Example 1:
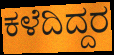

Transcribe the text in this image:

ಕಳೆದಿದ್ದರ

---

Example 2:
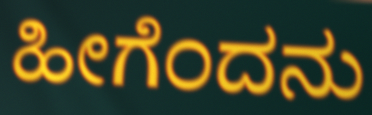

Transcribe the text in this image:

ಹೀಗೆಂದನು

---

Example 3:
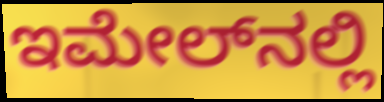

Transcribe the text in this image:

ಇಮೇಲ್‌ನಲ್ಲಿ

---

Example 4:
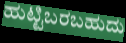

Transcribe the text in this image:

ಹುಟ್ಟಿಬರಬಹುದು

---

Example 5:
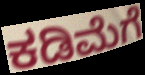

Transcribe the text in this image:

ಕಡಿಮೆಗೆ